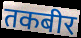
तकबीर